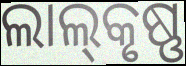
ଲାଲ୍‌କୃଷ୍ଣ